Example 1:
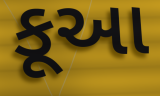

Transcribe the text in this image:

કૂઆ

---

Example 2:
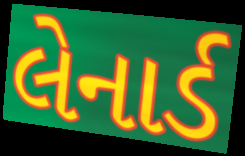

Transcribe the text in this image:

લેનાર્ડ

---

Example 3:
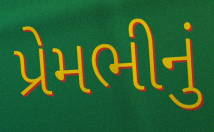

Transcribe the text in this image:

પ્રેમભીનું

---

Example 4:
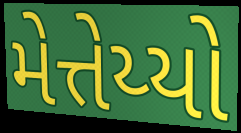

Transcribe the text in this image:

મેત્તેય્યો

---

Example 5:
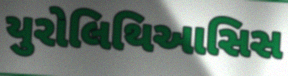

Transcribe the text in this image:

યુરોલિથિઆસિસ